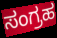
ಸಂಗ್ರಹ